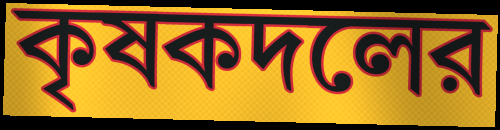
কৃষকদলের